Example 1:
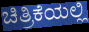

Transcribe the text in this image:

ಚಿತ್ರಿಕೆಯಲ್ಲಿ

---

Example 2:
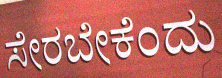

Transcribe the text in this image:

ಸೇರಬೇಕೆಂದು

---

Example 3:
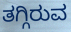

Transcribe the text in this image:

ತಗ್ಗಿರುವ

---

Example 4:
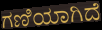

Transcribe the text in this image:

ಗಣಿಯಾಗಿದೆ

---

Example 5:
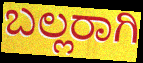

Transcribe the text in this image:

ಬಲ್ಲರಾಗಿ